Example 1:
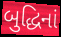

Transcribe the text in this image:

બુદ્ધિનાં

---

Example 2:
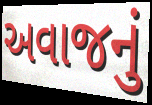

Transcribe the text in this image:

અવાજનું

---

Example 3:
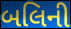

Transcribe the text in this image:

બલિની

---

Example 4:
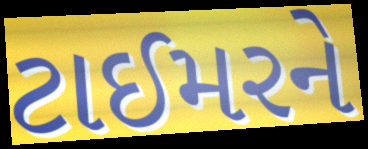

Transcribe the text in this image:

ટાઈમરને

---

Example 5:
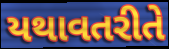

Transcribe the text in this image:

યથાવતરીતે